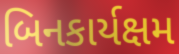
બિનકાર્યક્ષમ